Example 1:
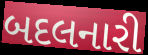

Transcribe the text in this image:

બદલનારી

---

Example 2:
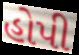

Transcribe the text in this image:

હોપી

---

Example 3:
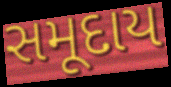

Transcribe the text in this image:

સમૂદાય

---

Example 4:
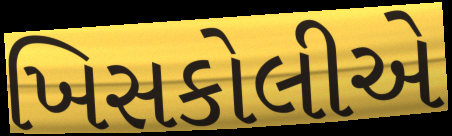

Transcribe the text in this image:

ખિસકોલીએ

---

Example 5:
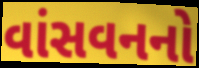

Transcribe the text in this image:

વાંસવનનો